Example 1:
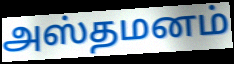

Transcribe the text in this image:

அஸ்தமனம்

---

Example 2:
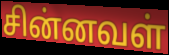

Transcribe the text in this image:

சின்னவள்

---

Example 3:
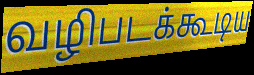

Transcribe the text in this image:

வழிபடக்கூடிய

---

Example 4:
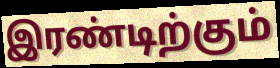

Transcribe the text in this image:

இரண்டிற்கும்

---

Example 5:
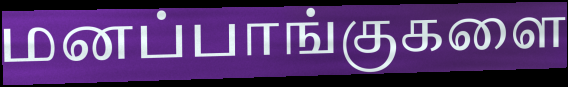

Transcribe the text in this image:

மனப்பாங்குகளை